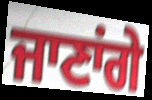
ਜਾਣਾਂਗੇ